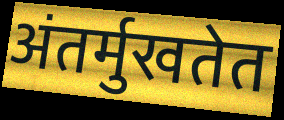
अंतर्मुखतेत